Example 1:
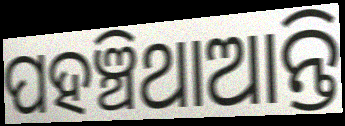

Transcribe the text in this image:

ପହଞ୍ଚିଥାଆନ୍ତି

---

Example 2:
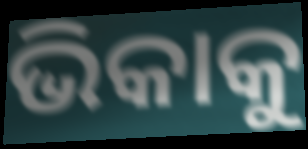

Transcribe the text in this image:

ଭିକାକୁ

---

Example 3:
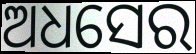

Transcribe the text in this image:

ଅଧସେର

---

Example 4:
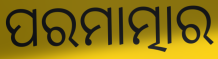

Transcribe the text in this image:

ପରମାତ୍ମାର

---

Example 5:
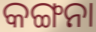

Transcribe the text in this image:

କଙ୍ଗନା